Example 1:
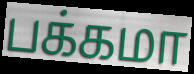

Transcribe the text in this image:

பக்கமா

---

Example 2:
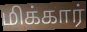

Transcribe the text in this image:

மிக்கார்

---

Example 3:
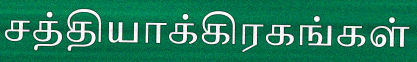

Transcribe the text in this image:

சத்தியாக்கிரகங்கள்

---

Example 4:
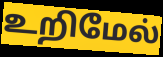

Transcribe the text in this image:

உறிமேல்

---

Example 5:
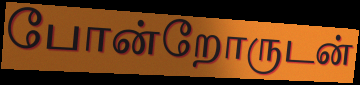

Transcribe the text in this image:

போன்றோருடன்